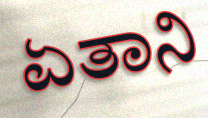
ಏತಾನಿ